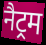
नैट्रम